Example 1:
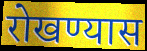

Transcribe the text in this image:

रोखण्यास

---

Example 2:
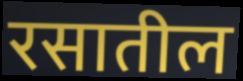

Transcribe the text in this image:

रसातील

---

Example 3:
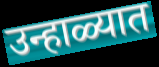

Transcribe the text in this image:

उन्हाळ्यात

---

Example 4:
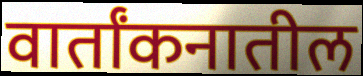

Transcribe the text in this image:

वार्तांकनातील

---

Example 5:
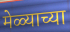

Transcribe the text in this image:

मेळ्याच्या